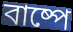
বাষ্পে